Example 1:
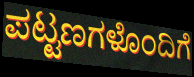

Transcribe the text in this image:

ಪಟ್ಟಣಗಳೊಂದಿಗೆ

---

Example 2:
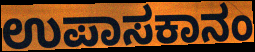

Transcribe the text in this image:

ಉಪಾಸಕಾನಂ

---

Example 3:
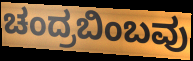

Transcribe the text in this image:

ಚಂದ್ರಬಿಂಬವು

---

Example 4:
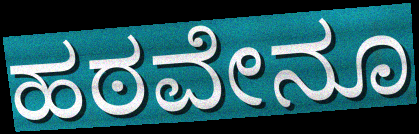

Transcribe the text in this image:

ಹಠವೇನೂ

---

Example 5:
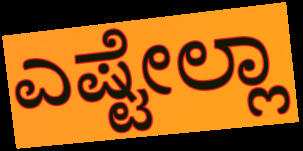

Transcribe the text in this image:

ಎಷ್ಟೇಲ್ಲಾ